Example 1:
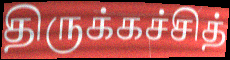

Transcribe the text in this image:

திருக்கச்சித்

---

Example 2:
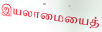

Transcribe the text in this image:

இயலாமையைத்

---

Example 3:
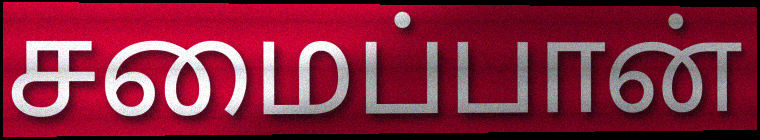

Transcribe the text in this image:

சமைப்பான்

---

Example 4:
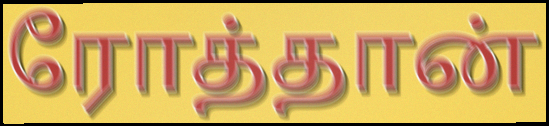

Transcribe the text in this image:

ரோத்தான்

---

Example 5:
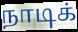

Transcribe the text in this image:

நாடிக்